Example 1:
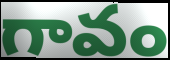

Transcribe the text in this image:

గావం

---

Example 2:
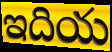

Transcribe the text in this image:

ఇదియ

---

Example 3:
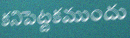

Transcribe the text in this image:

కనిపెట్టకముందు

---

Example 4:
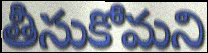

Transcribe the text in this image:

తీసుకోమని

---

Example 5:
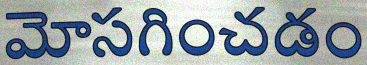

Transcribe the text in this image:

మోసగించడం